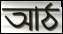
আঠ